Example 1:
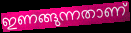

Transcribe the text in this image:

ഇണങ്ങുന്നതാണ്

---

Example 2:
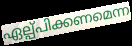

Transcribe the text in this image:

ഏല്പ്പിക്കണമെന്ന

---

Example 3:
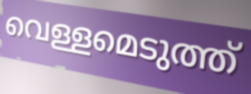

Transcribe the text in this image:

വെള്ളമെടുത്ത്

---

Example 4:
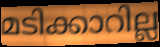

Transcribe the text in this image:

മടിക്കാറില്ല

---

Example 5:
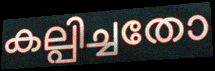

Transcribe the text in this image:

കല്പിച്ചതോ